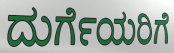
ದುರ್ಗೆಯರಿಗೆ